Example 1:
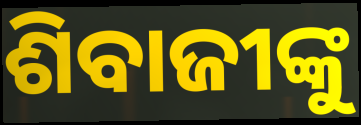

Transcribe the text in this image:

ଶିବାଜୀଙ୍କୁ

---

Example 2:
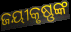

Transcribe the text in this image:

ଜୟୀକୃଷ୍ଣଙ୍କ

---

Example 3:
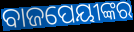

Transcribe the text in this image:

ବାଜପେୟୀଙ୍କର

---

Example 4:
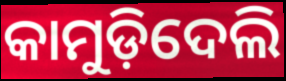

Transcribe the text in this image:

କାମୁଡ଼ିଦେଲି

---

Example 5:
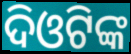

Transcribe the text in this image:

ଦିଓଟିଙ୍କ